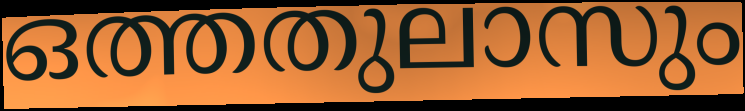
ഒത്തതുലാസും